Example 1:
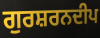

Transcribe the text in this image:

ਗੁਰਸ਼ਰਨਦੀਪ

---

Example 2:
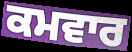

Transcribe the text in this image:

ਕਮਵਾਰ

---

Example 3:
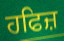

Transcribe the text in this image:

ਹਫਿਜ਼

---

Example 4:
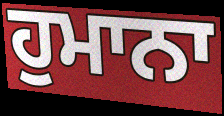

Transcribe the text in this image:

ਹੁਮਾਨਾ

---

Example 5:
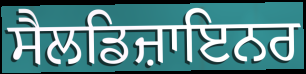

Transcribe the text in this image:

ਸੈਲਡਿਜ਼ਾਇਨਰ